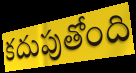
కదుపుతోంది